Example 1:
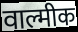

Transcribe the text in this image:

वाल्मीक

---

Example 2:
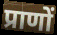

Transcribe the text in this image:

प्राणों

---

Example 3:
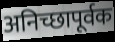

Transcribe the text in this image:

अनिच्छापूर्वक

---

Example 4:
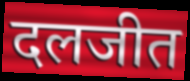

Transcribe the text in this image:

दलजीत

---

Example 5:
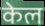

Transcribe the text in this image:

केल